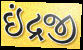
ઇંદ્રજી